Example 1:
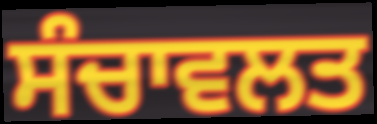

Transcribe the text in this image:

ਸੰਚਾਵਲਤ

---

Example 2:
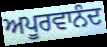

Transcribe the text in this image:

ਅਪੂਰਵਾਨੰਦ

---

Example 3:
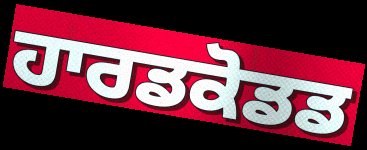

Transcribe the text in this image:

ਹਾਰਡਕੋਡਡ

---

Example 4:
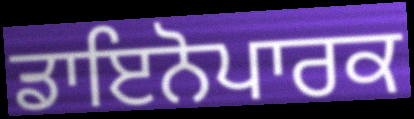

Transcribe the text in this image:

ਡਾਇਨੋਪਾਰਕ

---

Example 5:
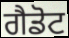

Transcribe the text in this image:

ਗੈਡੋਟ